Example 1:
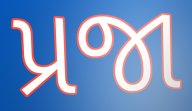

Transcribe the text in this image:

પ્રજા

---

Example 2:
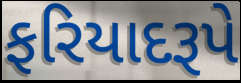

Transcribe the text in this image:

ફરિયાદરૂપે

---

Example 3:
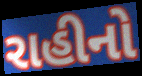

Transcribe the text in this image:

રાહીનો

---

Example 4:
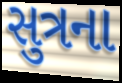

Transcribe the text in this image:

સુત્રના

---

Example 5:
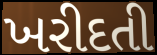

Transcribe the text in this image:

ખરીદતી